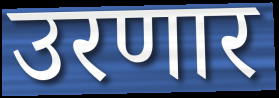
उरणार